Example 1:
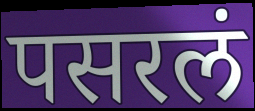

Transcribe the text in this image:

पसरलं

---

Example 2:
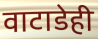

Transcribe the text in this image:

वाटाडेही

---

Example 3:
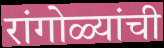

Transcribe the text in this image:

रांगोळ्यांची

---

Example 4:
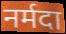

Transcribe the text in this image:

नर्मदा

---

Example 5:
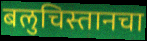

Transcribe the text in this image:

बलुचिस्तानचा